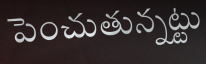
పెంచుతున్నట్టు